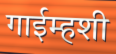
गाईम्हशी